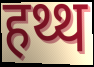
हथ्थ